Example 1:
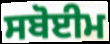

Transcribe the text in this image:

ਸਬੋਈਮ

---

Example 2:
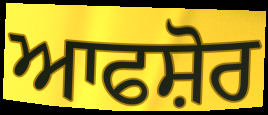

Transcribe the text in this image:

ਆਫਸ਼ੋਰ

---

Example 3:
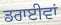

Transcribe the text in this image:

ਡਰਾਈਵਾਂ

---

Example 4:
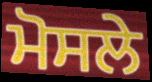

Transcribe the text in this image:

ਮੋਸਲੇ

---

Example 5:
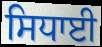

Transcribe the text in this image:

ਸਿਧਾਈ